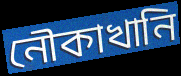
নৌকাখানি